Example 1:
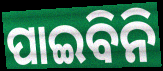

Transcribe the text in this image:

ପାଇବିନି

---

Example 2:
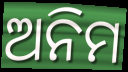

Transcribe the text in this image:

ଅନିମ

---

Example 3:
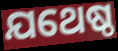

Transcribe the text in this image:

ଯଥେଷ୍ଠ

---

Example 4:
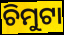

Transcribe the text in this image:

ଚିମୁଟା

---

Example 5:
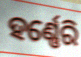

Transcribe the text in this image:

ହର୍ଣ୍ଣେରି